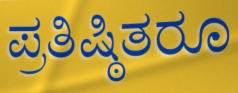
ಪ್ರತಿಷ್ಠಿತರೂ